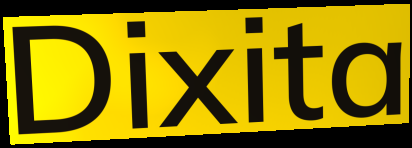
Dixita